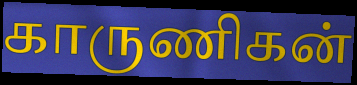
காருணிகன்